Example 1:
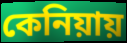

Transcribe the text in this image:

কেনিয়ায়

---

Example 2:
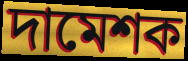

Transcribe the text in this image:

দামেশক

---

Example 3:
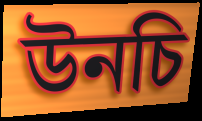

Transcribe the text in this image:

উনচি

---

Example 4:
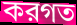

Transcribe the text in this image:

করগত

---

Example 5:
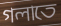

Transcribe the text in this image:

গলাতে